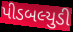
પીડબલ્યુડી